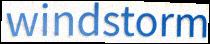
windstorm